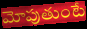
మోపుతుంటే